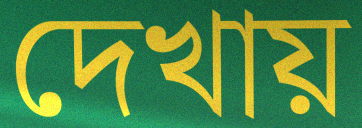
দেখায়